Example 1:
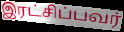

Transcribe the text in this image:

இரட்சிப்பவர்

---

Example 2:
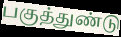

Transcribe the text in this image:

பகுத்துண்டு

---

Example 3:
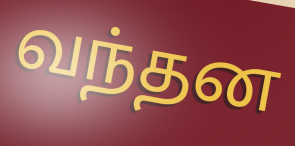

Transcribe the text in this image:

வந்தன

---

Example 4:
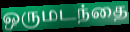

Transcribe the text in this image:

ஒருமடந்தை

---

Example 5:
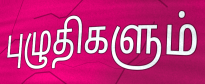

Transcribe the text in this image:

புழுதிகளும்